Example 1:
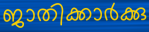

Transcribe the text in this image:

ജാതിക്കാർക്കു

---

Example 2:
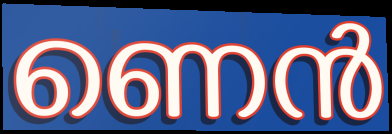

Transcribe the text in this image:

ണെൻ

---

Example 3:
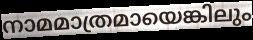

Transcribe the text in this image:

നാമമാത്രമായെങ്കിലും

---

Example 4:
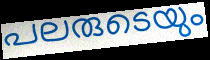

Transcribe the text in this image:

പലരുടെയും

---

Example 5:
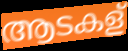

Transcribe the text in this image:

ആടകള്